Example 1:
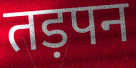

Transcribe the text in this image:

तड़पन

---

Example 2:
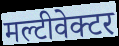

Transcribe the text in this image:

मल्टीवेक्टर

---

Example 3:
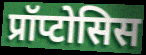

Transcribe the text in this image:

प्रॉप्टोसिस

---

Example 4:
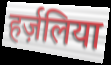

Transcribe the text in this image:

हर्ज़लिया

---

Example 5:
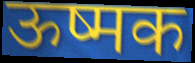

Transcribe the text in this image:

ऊष्मक